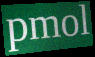
pmol